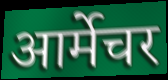
आर्मेचर